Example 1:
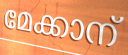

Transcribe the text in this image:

മേക്കാന്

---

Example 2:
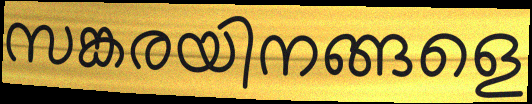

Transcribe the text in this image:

സങ്കരയിനങ്ങളെ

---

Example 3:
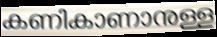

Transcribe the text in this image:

കണികാണാനുള്ള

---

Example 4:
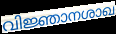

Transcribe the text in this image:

വിജ്ഞാനശാഖ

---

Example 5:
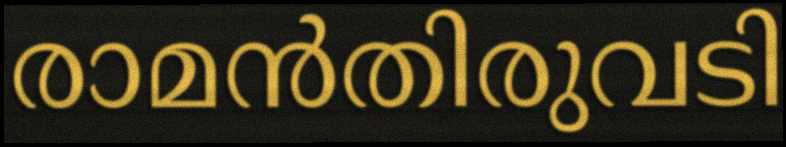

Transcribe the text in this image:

രാമൻതിരുവടി